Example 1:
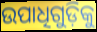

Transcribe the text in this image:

ଉପାଧିଗୁଡ଼ିକୁ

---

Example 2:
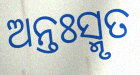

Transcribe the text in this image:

ଅନ୍ତଃସ୍ମୃତ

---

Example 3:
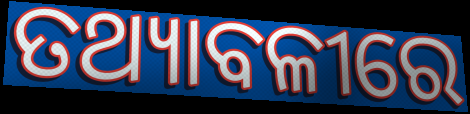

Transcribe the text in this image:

ତଥ୍ୟାବଳୀରେ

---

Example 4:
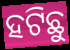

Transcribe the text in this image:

ହଟିଛୁ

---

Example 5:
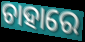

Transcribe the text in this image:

ଚାହାରେ